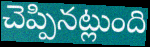
చెప్పినట్లుంది